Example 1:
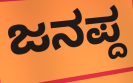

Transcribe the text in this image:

ಜನಪ್ದ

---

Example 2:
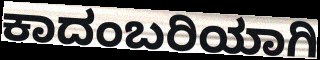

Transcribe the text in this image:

ಕಾದಂಬರಿಯಾಗಿ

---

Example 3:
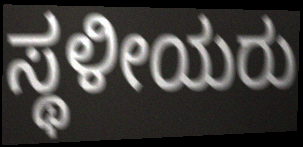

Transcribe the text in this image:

ಸ್ಥಳೀಯರು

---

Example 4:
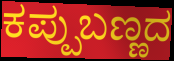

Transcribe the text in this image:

ಕಪ್ಪುಬಣ್ಣದ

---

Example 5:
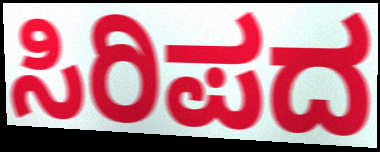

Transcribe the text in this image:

ಸಿರಿಪದ